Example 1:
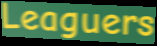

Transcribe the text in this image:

Leaguers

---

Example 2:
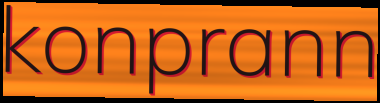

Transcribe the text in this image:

konprann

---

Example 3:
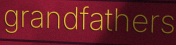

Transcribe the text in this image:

grandfathers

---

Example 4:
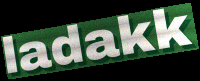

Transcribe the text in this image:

ladakk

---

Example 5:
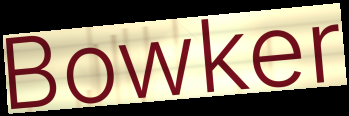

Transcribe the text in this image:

Bowker